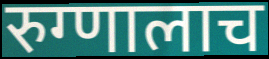
रुग्णालाच